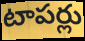
టాపర్లు